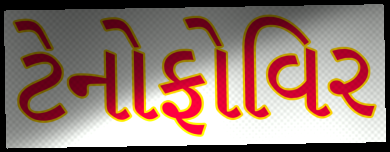
ટેનોફોવિર